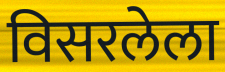
विसरलेला